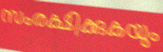
സംരക്ഷിക്കുകയും